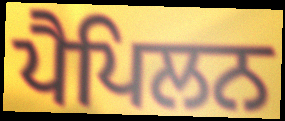
ਪੈਪਿਲਨ